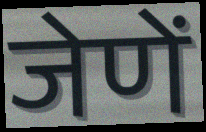
जेणें